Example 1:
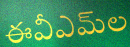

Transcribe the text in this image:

ఈవీఎమ్‌ల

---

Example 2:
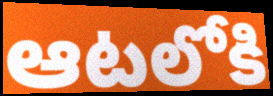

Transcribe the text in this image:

ఆటలోకి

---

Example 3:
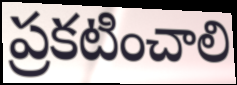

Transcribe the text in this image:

ప్రకటించాలి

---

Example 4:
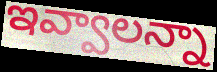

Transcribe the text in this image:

ఇవ్వాలన్నా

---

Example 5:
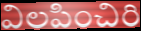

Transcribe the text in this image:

విలపించిరి